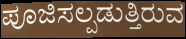
ಪೂಜಿಸಲ್ಪಡುತ್ತಿರುವ